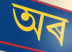
অৰ